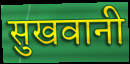
सुखवानी